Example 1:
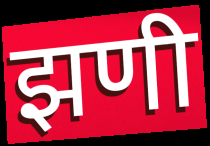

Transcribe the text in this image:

झणी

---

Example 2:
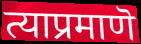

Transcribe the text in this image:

त्याप्रमाणॆ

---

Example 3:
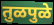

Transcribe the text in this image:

तुळपुळे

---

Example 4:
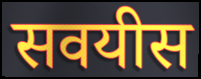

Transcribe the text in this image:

सवयीस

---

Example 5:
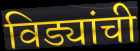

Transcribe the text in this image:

विड्यांची